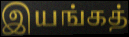
இயங்கத்